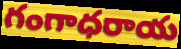
గంగాధరాయ